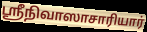
ஸ்ரீநிவாஸாசாரியார்